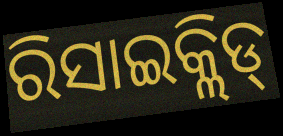
ରିସାଇକ୍ଲିଡ୍